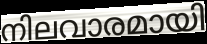
നിലവാരമായി